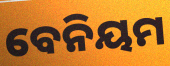
ବେନିୟମ